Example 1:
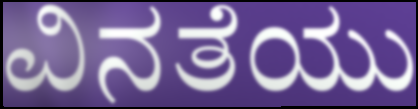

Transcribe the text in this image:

ವಿನತೆಯು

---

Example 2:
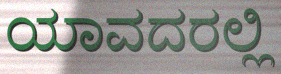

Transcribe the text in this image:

ಯಾವದರಲ್ಲಿ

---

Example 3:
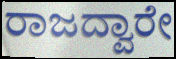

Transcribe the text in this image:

ರಾಜದ್ವಾರೇ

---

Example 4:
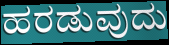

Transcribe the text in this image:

ಹರಡುವುದು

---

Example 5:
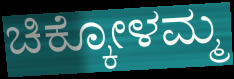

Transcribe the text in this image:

ಚಿಕ್ಕೋಳಮ್ಮ